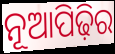
ନୂଆପିଢ଼ିର